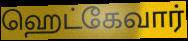
ஹெட்கேவார்